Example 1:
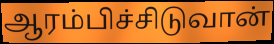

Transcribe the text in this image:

ஆரம்பிச்சிடுவான்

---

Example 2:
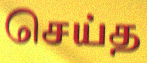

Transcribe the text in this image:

செய்த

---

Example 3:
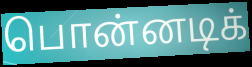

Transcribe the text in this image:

பொன்னடிக்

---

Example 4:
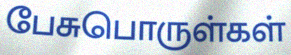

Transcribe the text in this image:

பேசுபொருள்கள்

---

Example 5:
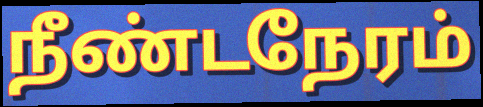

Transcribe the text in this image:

நீண்டநேரம்